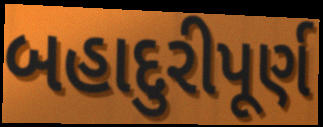
બહાદુરીપૂર્ણ